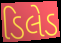
ડિલેડ